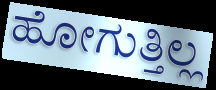
ಹೋಗುತ್ತಿಲ್ಲ